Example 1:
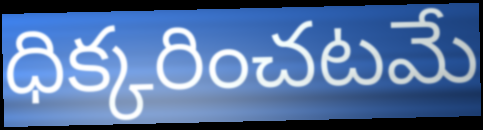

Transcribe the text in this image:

ధిక్కరించటమే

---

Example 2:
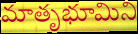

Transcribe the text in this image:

మాతృభూమిని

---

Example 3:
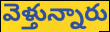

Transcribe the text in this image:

వెళ్తున్నారు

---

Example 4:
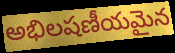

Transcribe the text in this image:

అభిలషణీయమైన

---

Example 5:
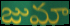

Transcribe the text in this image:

జుమా